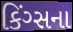
કિંગ્સના